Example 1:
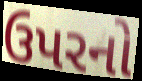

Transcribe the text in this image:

ઉપરનો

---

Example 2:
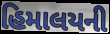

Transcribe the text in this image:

હિમાલયની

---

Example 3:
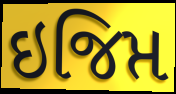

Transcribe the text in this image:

ઇજિપ્ત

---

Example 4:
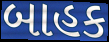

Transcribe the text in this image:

બાહક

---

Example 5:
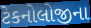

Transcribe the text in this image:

ટેકનોલોજીના